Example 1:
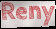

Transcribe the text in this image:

Reny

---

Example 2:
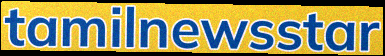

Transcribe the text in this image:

tamilnewsstar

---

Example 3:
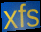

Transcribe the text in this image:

xfs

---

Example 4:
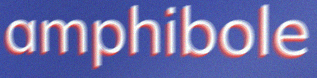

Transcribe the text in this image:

amphibole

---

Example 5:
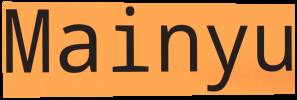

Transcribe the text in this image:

Mainyu